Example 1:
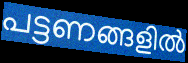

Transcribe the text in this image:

പട്ടണങ്ങളിൽ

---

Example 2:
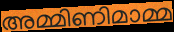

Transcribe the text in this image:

അമ്മിണിമാമ്മ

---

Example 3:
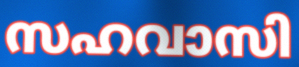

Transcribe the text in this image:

സഹവാസി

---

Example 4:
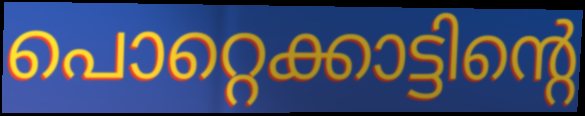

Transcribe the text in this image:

പൊറ്റെക്കാട്ടിന്റെ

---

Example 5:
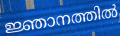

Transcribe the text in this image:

ജ്ഞാനത്തിൽ